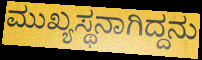
ಮುಖ್ಯಸ್ಥನಾಗಿದ್ದನು